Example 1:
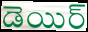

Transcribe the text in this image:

డెయిర్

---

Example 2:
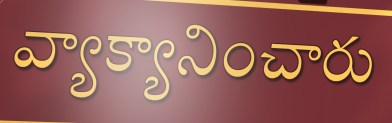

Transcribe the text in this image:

వ్యాక్యానించారు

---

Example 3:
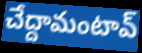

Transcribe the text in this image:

చేద్దామంటావ్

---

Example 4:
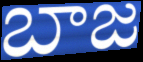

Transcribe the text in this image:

బాజ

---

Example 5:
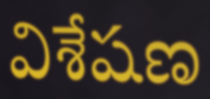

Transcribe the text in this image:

విశేషణ